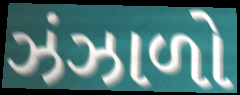
ઝંઝાળો